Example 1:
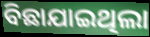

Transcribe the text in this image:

ବିଛାଯାଇଥିଲା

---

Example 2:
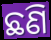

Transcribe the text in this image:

ଛଣି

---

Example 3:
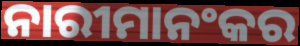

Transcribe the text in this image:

ନାରୀମାନଂକର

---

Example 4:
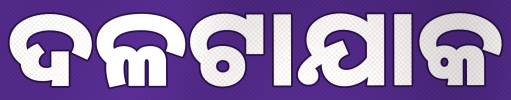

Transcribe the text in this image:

ଦଳଟାଯାକ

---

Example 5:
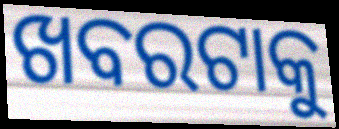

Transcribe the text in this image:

ଖବରଟାକୁ